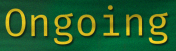
Ongoing